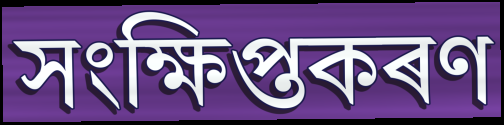
সংক্ষিপ্তকৰণ